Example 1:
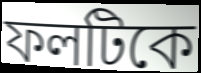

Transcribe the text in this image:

ফলটিকে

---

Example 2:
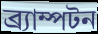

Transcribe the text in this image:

ব্র্যাম্পটন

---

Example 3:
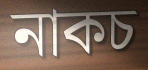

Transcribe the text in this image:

নাকচ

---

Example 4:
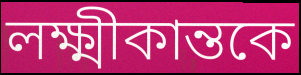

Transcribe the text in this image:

লক্ষ্মীকান্তকে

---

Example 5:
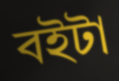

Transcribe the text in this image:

বইটা